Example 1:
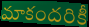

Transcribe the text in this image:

మాకందరికీ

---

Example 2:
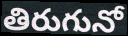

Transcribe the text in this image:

తిరుగునో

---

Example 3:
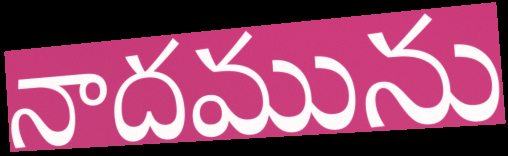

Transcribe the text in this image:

నాదమును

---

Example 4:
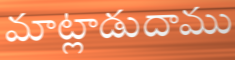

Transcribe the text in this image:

మాట్లాడుదాము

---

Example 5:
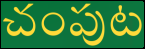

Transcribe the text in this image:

చంపుట